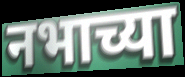
नभाच्या